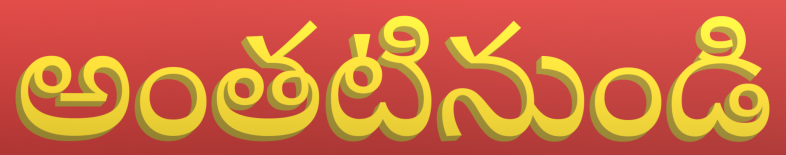
అంతటినుండి